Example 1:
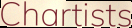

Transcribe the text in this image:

Chartists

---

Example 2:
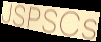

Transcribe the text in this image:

JSPSCs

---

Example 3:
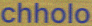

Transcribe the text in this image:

chholo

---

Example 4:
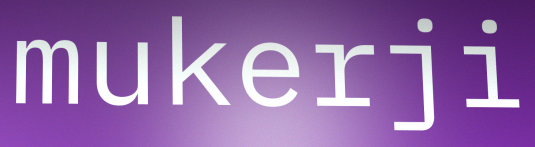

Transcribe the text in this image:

mukerji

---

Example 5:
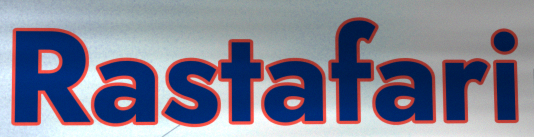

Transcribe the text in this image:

Rastafari